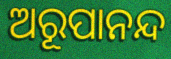
ଅରୂପାନନ୍ଦ